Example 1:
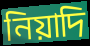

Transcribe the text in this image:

নিয়াদি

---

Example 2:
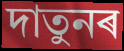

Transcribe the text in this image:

দাতুনৰ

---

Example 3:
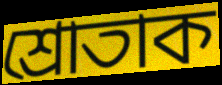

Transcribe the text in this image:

শ্ৰোতাক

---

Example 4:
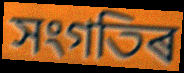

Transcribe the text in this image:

সংগতিৰ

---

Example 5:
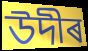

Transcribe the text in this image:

উদীৰ